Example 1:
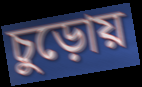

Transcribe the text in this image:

চুড়োয়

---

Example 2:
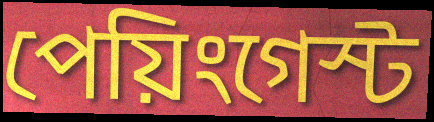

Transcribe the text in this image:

পেয়িংগেস্ট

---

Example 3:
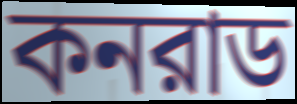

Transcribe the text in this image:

কনরাড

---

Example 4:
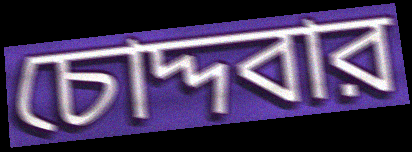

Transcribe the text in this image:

চোদ্দবার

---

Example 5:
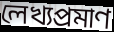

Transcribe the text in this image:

লেখ্যপ্রমাণ